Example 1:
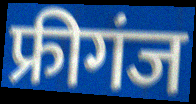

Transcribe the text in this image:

फ्रीगंज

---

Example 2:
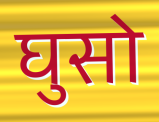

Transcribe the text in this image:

घुसो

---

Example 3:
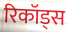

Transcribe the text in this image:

रिकॉड्स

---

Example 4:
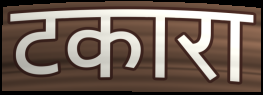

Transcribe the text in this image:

टकारा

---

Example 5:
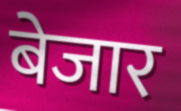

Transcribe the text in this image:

बेजार